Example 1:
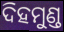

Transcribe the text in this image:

ଦିହମୁଣ୍ଡ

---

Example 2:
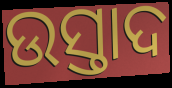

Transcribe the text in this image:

ଉସ୍ତାଦ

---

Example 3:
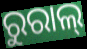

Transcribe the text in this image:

ରୁରାଲ୍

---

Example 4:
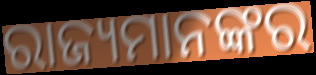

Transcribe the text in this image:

ରାଜ୍ୟମାନଙ୍କର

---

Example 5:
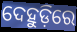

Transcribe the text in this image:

ଦେହୁଡ଼ିରେ